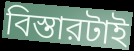
বিস্তারটাই